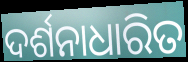
ଦର୍ଶନାଧାରିତ